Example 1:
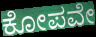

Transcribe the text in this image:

ಕೋಪವೇ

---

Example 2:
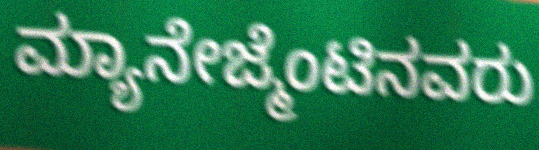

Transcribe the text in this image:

ಮ್ಯಾನೇಜ್ಮೆಂಟಿನವರು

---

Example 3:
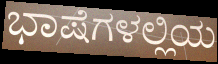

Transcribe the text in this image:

ಭಾಷೆಗಳಲ್ಲಿಯ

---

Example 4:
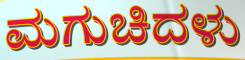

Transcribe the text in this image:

ಮಗುಚಿದಳು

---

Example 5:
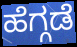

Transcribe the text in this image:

ಹೆಗ್ಗಡೆ